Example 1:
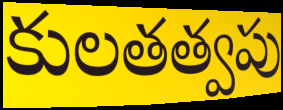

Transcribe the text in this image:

కులతత్వపు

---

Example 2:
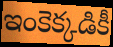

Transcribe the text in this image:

ఇంకెక్కడికీ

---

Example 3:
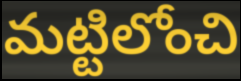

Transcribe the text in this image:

మట్టిలోంచి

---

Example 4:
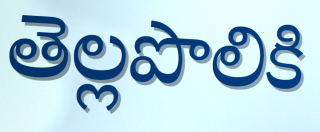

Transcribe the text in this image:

తెల్లపొలికి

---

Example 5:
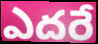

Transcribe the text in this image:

ఎదరే